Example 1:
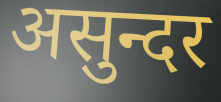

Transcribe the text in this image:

असुन्दर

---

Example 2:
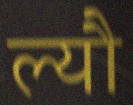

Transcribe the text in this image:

ल्यौ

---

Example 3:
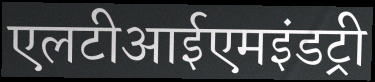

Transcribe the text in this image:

एलटीआईएमइंडट्री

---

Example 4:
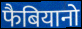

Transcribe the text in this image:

फैबियानो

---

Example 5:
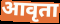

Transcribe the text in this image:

आवृता